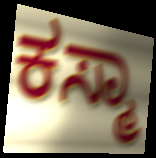
ಕಸ್ಮಾ